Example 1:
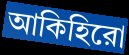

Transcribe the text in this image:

আকিহিরো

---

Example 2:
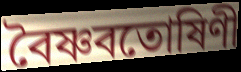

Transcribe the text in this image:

বৈষ্ণবতোষিণী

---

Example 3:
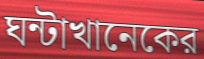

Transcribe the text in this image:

ঘন্টাখানেকের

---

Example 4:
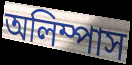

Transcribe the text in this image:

অলিম্পাস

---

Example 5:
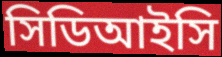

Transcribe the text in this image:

সিডিআইসি